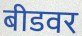
बीडवर